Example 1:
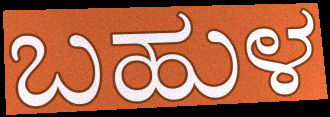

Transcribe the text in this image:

ಬಹುಳ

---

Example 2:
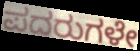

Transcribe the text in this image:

ಪದರುಗಳೇ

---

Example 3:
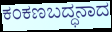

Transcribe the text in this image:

ಕಂಕಣಬದ್ಧನಾದ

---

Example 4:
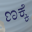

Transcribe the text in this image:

ಣಕ್ಕೆ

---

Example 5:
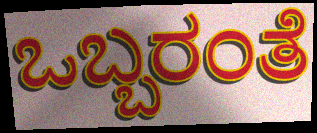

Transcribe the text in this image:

ಒಬ್ಬರಂತೆ